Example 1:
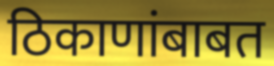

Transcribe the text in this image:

ठिकाणांबाबत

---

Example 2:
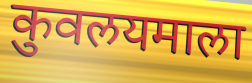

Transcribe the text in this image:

कुवलयमाला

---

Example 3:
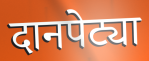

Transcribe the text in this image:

दानपेट्या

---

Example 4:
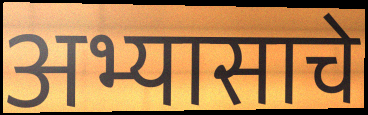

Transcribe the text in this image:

अभ्यासाचे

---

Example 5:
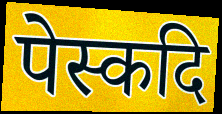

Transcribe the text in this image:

पेस्कदि